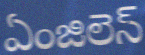
ఏంజిలెస్